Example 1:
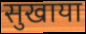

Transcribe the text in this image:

सुखाया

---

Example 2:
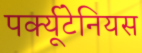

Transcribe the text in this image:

पर्क्यूटेनियस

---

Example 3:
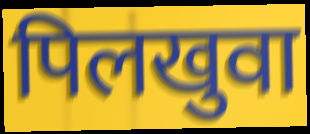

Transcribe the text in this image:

पिलखुवा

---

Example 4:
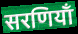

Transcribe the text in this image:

सरणियाँ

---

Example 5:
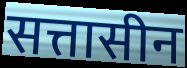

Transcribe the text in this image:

सत्तासीन